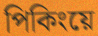
পিকিংয়ে